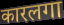
कारलगा